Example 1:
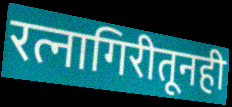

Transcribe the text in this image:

रत्नागिरीतूनही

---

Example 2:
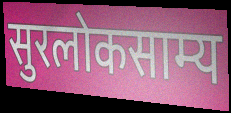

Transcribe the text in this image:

सुरलोकसाम्य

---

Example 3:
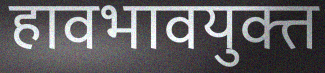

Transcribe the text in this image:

हावभावयुक्त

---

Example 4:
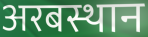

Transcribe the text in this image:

अरबस्थान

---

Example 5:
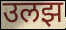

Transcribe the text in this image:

उलझ